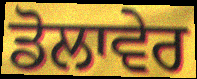
ਡੋਲਾਵੇਰ